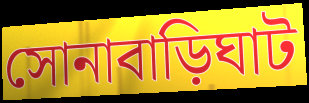
সোনাবাড়িঘাট